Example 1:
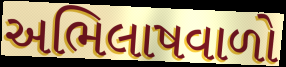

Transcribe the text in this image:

અભિલાષવાળો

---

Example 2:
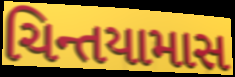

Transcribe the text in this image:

ચિન્તયામાસ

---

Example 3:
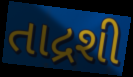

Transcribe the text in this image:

તાદ્રશી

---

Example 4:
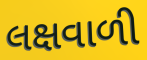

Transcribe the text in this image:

લક્ષવાળી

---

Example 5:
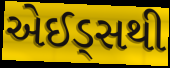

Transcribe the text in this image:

એઈડ્સથી